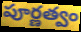
పూర్ణత్వం